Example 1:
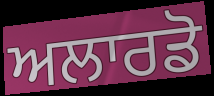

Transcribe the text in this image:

ਅਲਾਰਡੋ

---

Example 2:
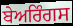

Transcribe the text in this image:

ਬੇਅਰਿੰਗਸ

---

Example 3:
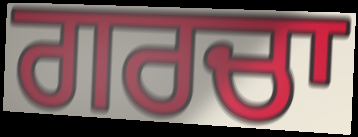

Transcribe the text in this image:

ਗਰਚਾ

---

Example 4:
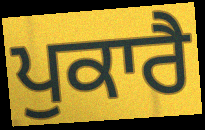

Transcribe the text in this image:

ਪੁਕਾਰੈ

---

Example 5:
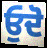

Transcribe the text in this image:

ਓੁਦੋ